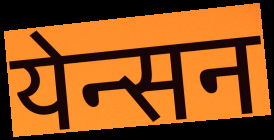
येन्सन